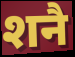
शनै